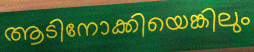
ആടിനോക്കിയെങ്കിലും